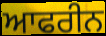
ਆਫਰੀਨ